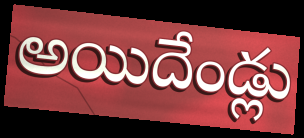
అయిదేండ్లు